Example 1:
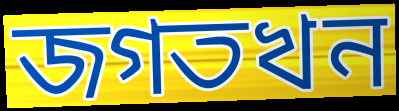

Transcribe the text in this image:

জগতখন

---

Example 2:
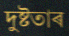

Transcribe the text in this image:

দুষ্টতাৰ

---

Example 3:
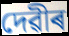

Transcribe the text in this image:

দেৱীৰ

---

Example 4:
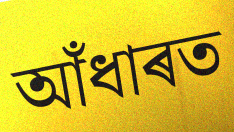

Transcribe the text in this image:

আঁধাৰত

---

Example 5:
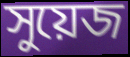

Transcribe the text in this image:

সুয়েজ